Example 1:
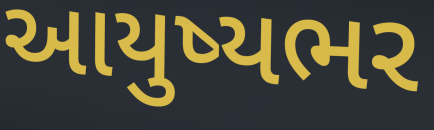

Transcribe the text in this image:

આયુષ્યભર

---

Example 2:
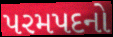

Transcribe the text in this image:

પરમપદનો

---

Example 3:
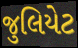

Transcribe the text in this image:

જુલિયેટ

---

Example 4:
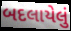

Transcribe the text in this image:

બદલાયેલું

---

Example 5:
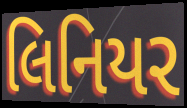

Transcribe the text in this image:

લિનિયર